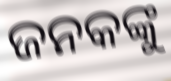
ଜନକଙ୍କୁ